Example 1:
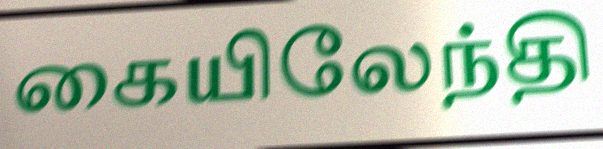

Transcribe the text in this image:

கையிலேந்தி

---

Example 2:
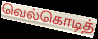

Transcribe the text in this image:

வெல்கொடித்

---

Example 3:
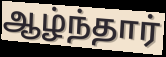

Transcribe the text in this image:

ஆழ்ந்தார்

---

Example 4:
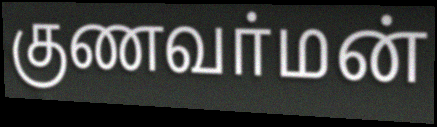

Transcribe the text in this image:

குணவர்மன்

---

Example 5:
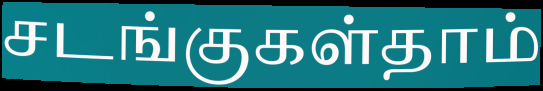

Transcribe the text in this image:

சடங்குகள்தாம்